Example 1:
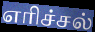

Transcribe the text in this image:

எரிச்சல்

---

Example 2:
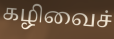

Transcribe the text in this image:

கழிவைச்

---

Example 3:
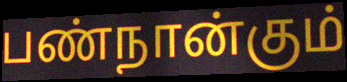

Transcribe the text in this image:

பண்நான்கும்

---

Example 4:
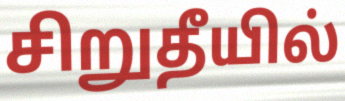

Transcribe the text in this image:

சிறுதீயில்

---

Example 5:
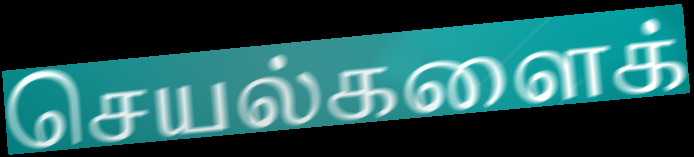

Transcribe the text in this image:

செயல்களைக்